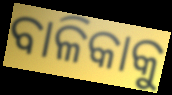
ବାଳିକାକୁ